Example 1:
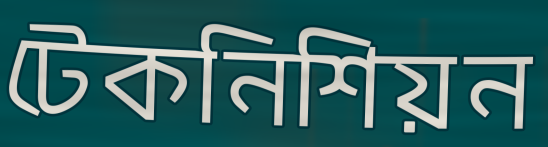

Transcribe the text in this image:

টেকনিশিয়ন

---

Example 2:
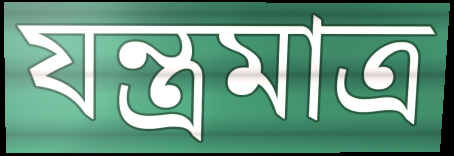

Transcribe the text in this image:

যন্ত্রমাত্র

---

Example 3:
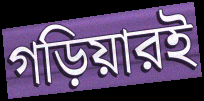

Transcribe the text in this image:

গড়িয়ারই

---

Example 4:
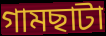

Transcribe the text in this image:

গামছাটা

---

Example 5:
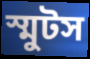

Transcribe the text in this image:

স্মুটস